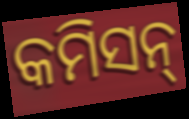
କମିସନ୍